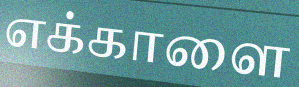
எக்காளை